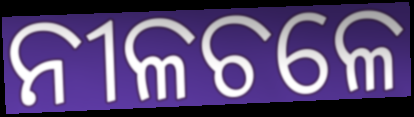
ନୀଳଚଳେ